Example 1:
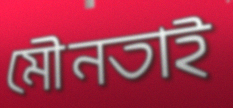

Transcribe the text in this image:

মৌনতাই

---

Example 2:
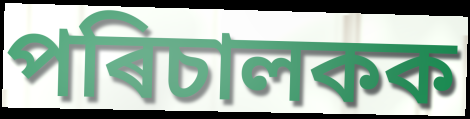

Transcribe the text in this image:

পৰিচালকক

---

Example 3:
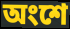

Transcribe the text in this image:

অংশে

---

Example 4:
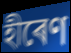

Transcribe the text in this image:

হীৰেণ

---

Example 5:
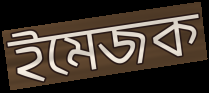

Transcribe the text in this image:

ইমেজক